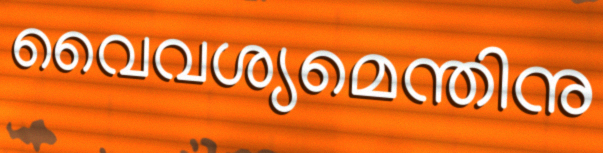
വൈവശ്യമെന്തിനു